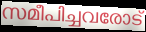
സമീപിച്ചവരോട്